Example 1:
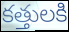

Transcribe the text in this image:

కత్తులకి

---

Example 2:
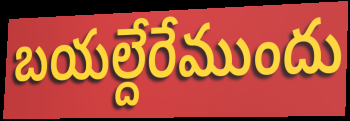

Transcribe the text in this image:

బయల్దేరేముందు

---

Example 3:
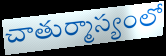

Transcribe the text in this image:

చాతుర్మాస్యంలో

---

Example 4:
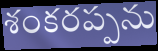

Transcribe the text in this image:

శంకరప్పను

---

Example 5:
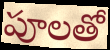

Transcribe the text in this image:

పూలతో